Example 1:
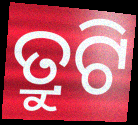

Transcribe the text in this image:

ତ୍ରୁଟି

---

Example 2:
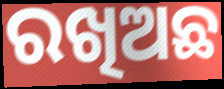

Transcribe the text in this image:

ରଖିଅଛ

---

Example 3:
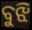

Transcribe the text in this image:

ବୁଝି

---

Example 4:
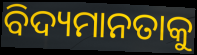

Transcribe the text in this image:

ବିଦ୍ୟମାନତାକୁ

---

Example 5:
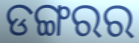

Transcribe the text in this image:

ଡଙ୍ଗରର